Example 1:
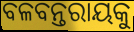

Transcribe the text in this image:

ବଳବନ୍ତରାୟକୁ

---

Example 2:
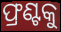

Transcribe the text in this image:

ଫ୍ରଣ୍ଟକୁ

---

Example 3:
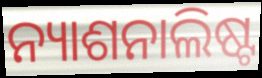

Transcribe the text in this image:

ନ୍ୟାଶନାଲିଷ୍ଟ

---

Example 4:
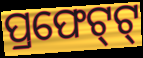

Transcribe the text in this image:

ପ୍ରଫେଟ୍‌ଟ୍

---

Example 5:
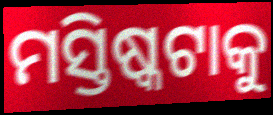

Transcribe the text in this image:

ମସ୍ତିଷ୍କଟାକୁ